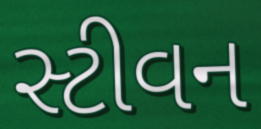
સ્ટીવન